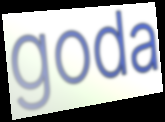
goda